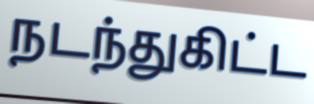
நடந்துகிட்ட